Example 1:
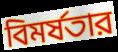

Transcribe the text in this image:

বিমর্ষতার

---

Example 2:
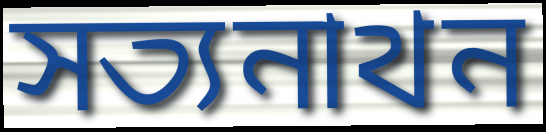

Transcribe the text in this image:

সত্যনাথন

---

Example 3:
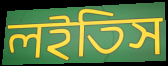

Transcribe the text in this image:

লইতিস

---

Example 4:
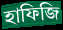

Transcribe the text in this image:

হাফিজি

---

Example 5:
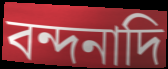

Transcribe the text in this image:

বন্দনাদি